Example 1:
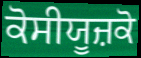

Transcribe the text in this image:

ਕੋਸੀਯੂਜ਼ਕੋ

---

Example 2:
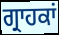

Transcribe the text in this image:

ਗ੍ਰਾਹਕਾਂ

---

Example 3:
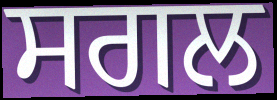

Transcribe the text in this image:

ਸਗਲ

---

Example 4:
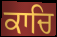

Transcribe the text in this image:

ਕਾਚਿ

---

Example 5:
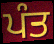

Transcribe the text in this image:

ਪੰਤ